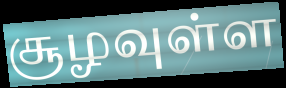
சூழவுள்ள